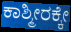
ಕಾಶ್ಮೀರಕ್ಕೇ